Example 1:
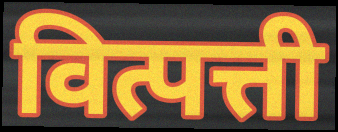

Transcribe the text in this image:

वित्पत्ती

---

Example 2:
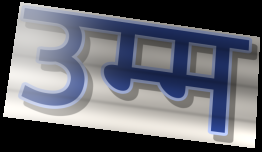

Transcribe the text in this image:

उम्म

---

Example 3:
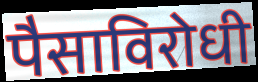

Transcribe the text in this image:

पैसाविरोधी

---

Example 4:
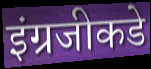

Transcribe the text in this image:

इंग्रजीकडे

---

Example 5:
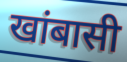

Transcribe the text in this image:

खांबासी